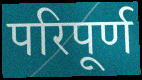
परिपूर्ण